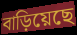
বাড়িয়েছে